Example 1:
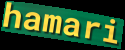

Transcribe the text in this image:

hamari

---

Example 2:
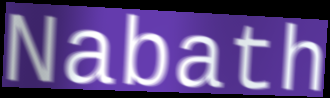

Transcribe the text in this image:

Nabath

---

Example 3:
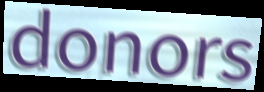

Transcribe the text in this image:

donors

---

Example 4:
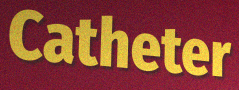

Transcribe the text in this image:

Catheter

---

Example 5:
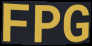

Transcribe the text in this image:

FPG